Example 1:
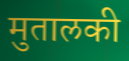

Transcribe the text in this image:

मुतालकी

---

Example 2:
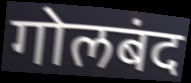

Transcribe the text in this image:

गोलबंद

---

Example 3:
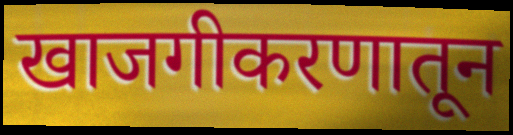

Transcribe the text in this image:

खाजगीकरणातून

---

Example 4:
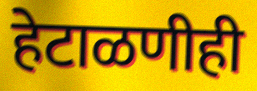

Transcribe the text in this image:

हेटाळणीही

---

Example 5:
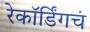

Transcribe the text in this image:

रेकॉर्डिंगचं